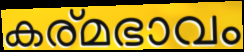
കര്മഭാവം